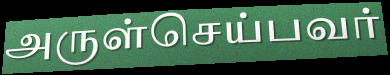
அருள்செய்பவர்